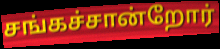
சங்கச்சான்றோர்